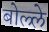
बोल्ले